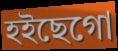
হইছেগো